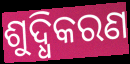
ଶୁଦ୍ଧିକରଣ